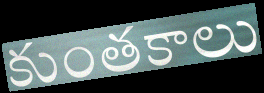
కుంతకాలు